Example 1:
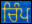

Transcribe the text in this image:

ਚਿੰਪ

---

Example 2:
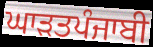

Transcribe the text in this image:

ਘਾੜਤਪੰਜਾਬੀ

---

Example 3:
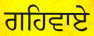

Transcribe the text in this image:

ਗਹਿਵਾਏ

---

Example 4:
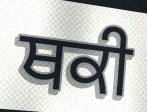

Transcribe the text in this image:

ਥਕੀ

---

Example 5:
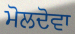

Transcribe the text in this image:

ਮੋਲਦੋਵਾ